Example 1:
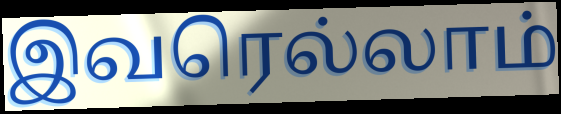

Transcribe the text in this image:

இவரெல்லாம்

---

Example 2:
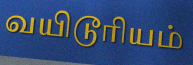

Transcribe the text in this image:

வயிடூரியம்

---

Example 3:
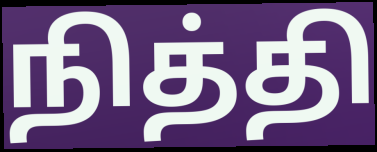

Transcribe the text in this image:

நித்தி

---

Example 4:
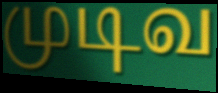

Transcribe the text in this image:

முடிவ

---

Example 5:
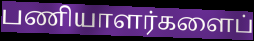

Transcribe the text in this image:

பணியாளர்களைப்